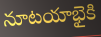
నూటయాభైకి